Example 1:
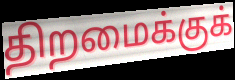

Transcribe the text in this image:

திறமைக்குக்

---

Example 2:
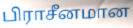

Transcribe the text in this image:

பிராசீனமான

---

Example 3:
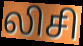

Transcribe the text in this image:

லிசி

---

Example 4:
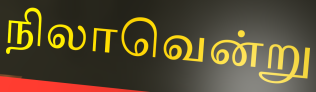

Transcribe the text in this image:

நிலாவென்று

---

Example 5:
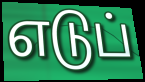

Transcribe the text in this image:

எடுப்